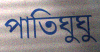
পাতিঘুঘু